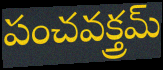
పంచవక్త్రమ్